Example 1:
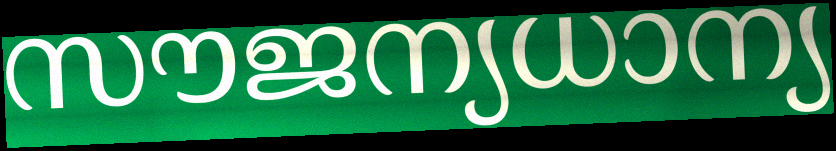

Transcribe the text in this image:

സൗജന്യധാന്യ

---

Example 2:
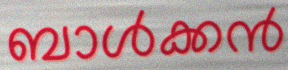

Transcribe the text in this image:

ബാൾക്കൻ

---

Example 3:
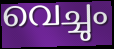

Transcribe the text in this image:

വെച്ചും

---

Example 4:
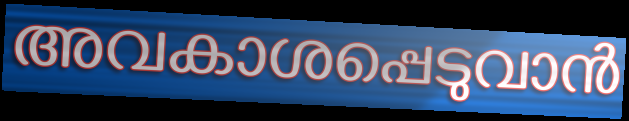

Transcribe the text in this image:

അവകാശപ്പെടുവാൻ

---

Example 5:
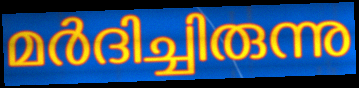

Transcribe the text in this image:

മർദിച്ചിരുന്നു